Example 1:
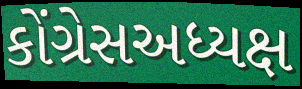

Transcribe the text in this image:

કોંગ્રેસઅધ્યક્ષ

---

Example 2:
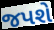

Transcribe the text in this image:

જપશે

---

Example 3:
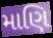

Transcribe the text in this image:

માણિ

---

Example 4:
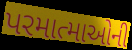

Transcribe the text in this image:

પરમાત્માઓની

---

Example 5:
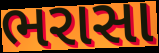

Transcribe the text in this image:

ભરાસા